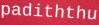
padiththu